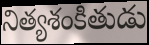
నిత్యశంకితుడు